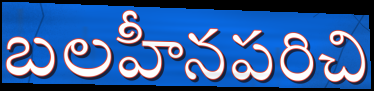
బలహీనపరిచి